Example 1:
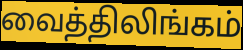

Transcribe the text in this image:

வைத்திலிங்கம்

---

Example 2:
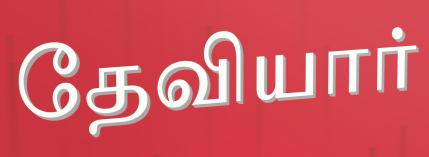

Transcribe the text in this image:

தேவியார்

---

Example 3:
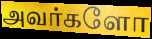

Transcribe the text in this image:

அவர்களோ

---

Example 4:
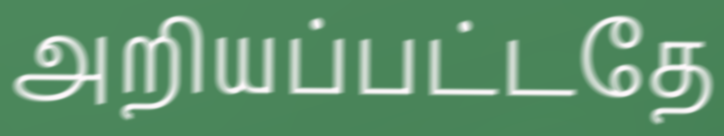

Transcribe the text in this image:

அறியப்பட்டதே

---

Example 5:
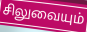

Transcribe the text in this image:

சிலுவையும்